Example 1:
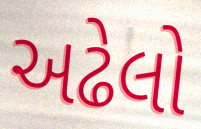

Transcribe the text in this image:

અઢેલો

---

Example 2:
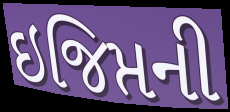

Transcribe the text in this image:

ઇજિપ્તની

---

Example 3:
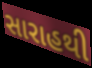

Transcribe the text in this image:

સારાહથી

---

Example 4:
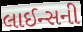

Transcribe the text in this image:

લાઈન્સની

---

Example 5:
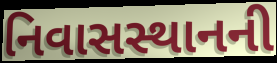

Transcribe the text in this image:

નિવાસસ્થાનની